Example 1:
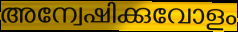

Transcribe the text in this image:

അന്വേഷിക്കുവോളം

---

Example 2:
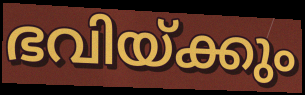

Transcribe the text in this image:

ഭവിയ്ക്കും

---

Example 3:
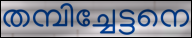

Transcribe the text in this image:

തമ്പിച്ചേട്ടനെ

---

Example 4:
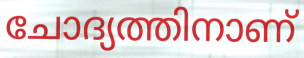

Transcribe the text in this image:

ചോദ്യത്തിനാണ്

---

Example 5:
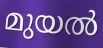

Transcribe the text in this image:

മുയൽ